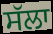
ਸੱਲਾ